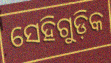
ସେହିଗୁଡ଼ିକ